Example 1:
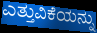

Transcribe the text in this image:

ಎತ್ತುವಿಕೆಯನ್ನು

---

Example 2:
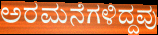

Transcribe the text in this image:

ಅರಮನೆಗಳಿದ್ದವು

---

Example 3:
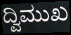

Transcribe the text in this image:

ದ್ವಿಮುಖ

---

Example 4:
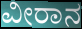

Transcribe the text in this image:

ವೀರಾನ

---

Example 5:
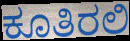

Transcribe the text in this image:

ಕೂತಿರಲಿ